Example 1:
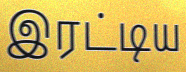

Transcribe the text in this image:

இரட்டிய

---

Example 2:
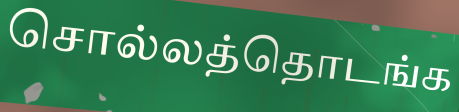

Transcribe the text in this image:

சொல்லத்தொடங்க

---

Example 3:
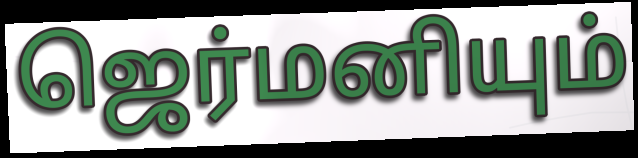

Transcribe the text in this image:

ஜெர்மனியும்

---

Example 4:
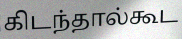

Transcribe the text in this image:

கிடந்தால்கூட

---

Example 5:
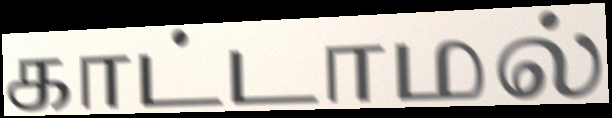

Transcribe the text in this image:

காட்டாமல்